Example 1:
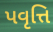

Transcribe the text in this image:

પવૃત્તિ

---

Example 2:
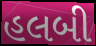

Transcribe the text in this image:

હલબી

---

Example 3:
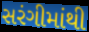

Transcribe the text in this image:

સરંગીમાંથી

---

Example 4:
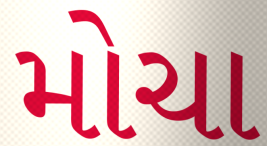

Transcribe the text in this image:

મોચા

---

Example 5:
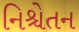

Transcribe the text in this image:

નિશ્ચેતન